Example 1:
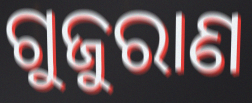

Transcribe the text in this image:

ଗୁଜୁରାଣ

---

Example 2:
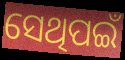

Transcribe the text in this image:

ସେଥିପଇଁ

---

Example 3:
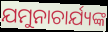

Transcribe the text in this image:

ଯମୁନାଚାର୍ଯ୍ୟଙ୍କ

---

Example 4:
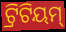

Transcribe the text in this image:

ଟ୍ରିଟିୟମ୍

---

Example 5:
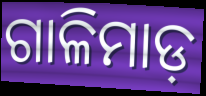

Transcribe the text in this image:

ଗାଳିମାଡ଼